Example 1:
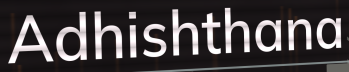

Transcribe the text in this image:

Adhishthana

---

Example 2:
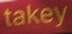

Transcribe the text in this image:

takey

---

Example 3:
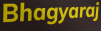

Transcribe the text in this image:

Bhagyaraj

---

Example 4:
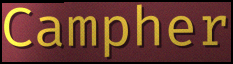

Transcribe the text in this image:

Campher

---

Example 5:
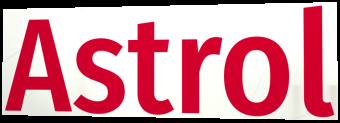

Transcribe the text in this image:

Astrol